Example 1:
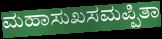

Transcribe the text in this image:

ಮಹಾಸುಖಸಮಪ್ಪಿತಾ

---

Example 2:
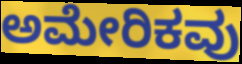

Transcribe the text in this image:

ಅಮೇರಿಕವು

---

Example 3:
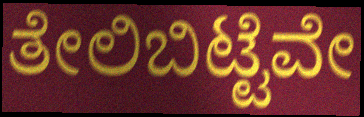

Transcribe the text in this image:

ತೇಲಿಬಿಟ್ಟೆವೇ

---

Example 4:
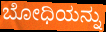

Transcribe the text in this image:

ಬೋಧಿಯನ್ನು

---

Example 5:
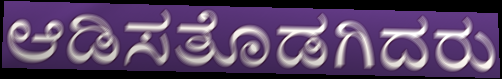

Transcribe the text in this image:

ಆಡಿಸತೊಡಗಿದರು